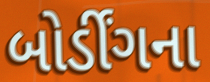
બોર્ડીંગના